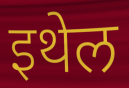
इथेल